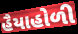
હૈયાહોળી